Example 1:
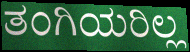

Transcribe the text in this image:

ತಂಗಿಯರಿಲ್ಲ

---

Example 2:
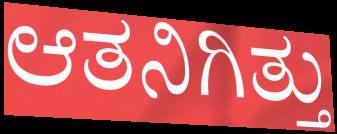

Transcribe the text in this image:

ಆತನಿಗಿತ್ತು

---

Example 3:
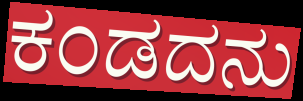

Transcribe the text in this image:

ಕಂಡದನು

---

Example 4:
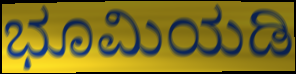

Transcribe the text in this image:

ಭೂಮಿಯಡಿ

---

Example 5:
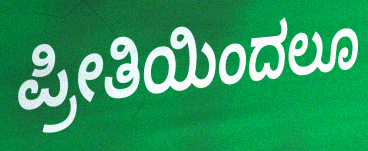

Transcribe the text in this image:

ಪ್ರೀತಿಯಿಂದಲೂ